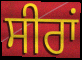
ਸੀਰਾਂ